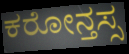
ಕರೋನ್ತಸ್ಸ